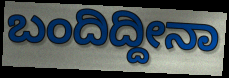
ಬಂದಿದ್ದೀನಾ